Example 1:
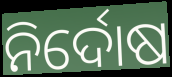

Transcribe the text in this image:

ନିର୍ଦୋଷ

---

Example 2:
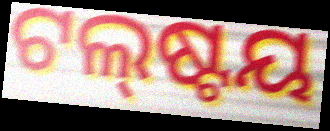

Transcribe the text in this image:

ଟଲ୍‌ଷ୍ଟୟ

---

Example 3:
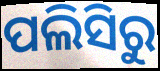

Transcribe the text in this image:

ପଲିସିରୁ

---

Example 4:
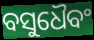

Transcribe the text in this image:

ବସୁଧୈବଂ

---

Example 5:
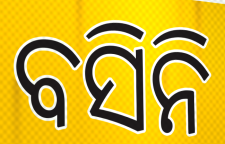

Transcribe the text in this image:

ବସିନି